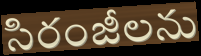
సిరంజీలను